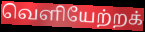
வெளியேற்றக்